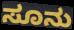
ಸೂನು